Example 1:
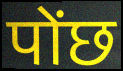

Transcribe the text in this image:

पोंछ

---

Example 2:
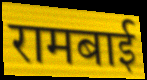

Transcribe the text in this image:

रामबाई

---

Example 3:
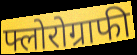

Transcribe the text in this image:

फ्लोरोग्राफी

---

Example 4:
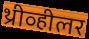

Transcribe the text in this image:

थ्रीव्हीलर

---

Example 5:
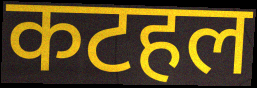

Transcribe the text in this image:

कटहल